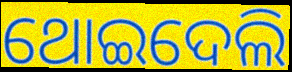
ଥୋଇଦେଲି